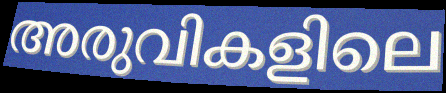
അരുവികളിലെ